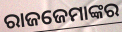
ରାଜଜେମାଙ୍କର